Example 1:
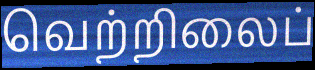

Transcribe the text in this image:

வெற்றிலைப்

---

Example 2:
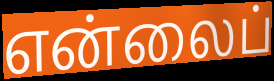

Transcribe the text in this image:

என்லைப்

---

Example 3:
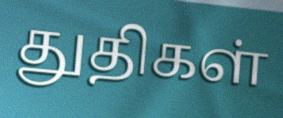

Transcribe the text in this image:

துதிகள்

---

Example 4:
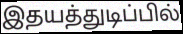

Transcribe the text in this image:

இதயத்துடிப்பில்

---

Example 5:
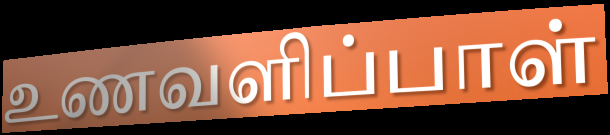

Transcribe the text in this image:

உணவளிப்பாள்